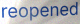
reopened